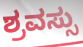
ಶ್ರವಸ್ಸು